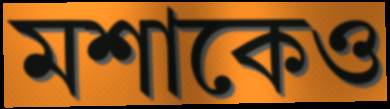
মশাকেও